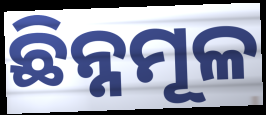
ଛିନ୍ନମୂଳ